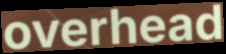
overhead